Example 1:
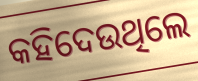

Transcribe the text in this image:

କହିଦେଉଥିଲେ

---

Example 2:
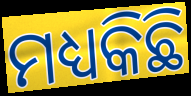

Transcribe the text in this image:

ମଧ୍ୟକିଛି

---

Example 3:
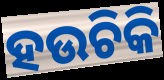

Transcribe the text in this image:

ହଉଚିକି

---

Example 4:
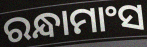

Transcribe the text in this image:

ରନ୍ଧାମାଂସ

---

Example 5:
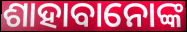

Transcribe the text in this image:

ଶାହାବାନୋଙ୍କ